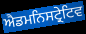
ਐਡਮਨਿਸਟ੍ਰੇਟਿਵ